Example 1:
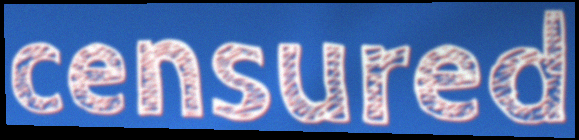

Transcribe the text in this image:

censured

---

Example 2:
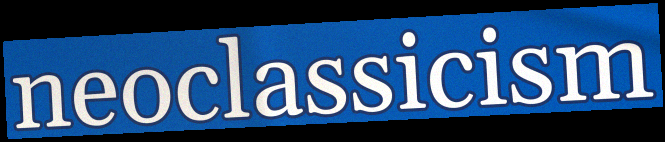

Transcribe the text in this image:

neoclassicism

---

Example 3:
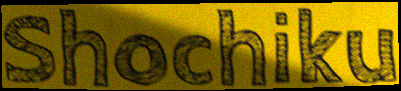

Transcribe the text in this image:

Shochiku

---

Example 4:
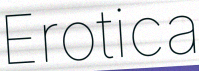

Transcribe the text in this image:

Erotica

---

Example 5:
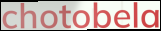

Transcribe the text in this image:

chotobela